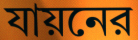
যায়নের